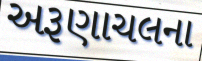
અરૂણાચલના